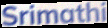
Srimathi